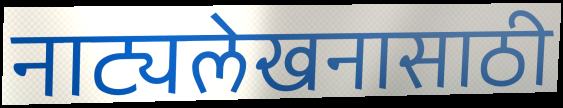
नाट्यलेखनासाठी